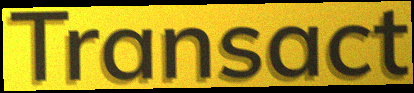
Transact